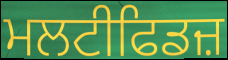
ਮਲਟੀਫਿਡਜ਼